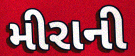
મીરાની